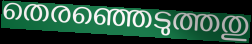
തെരഞ്ഞെടുത്തതു